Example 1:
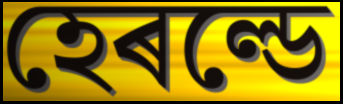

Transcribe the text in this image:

হেৰল্ডে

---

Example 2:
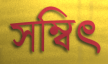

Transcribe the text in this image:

সম্বিৎ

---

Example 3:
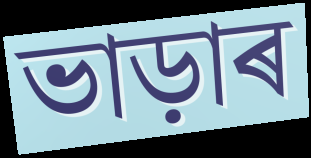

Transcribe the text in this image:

ভাড়াৰ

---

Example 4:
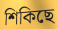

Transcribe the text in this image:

শিকিছে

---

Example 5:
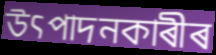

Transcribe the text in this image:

উৎপাদনকাৰীৰ